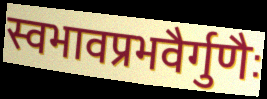
स्वभावप्रभवैर्गुणैः